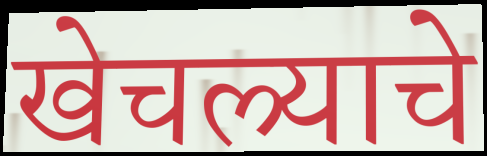
खेचल्याचे